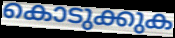
കൊടുക്കുക